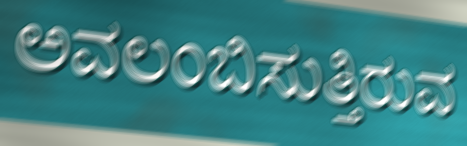
ಅವಲಂಬಿಸುತ್ತಿರುವ